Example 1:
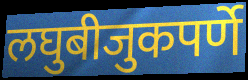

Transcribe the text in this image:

लघुबीजुकपर्णे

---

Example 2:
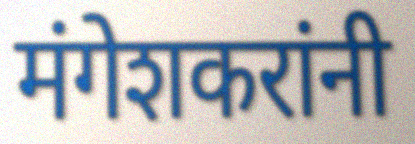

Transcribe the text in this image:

मंगेशकरांनी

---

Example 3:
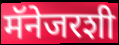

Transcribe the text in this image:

मॅनेजरशी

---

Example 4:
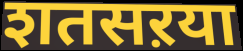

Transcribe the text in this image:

शतसऱया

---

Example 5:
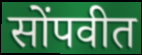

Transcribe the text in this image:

सोंपवीत